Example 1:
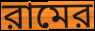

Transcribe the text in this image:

রামের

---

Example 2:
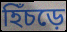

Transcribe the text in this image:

হিঁচড়ে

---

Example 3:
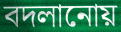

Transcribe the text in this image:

বদলানোয়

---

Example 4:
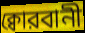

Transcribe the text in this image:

ক্বোরবানী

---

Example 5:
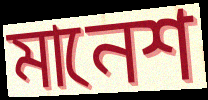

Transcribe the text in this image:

মানেশ